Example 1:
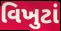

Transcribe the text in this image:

વિખુટાં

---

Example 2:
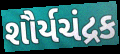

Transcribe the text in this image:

શૌર્યચંદ્રક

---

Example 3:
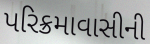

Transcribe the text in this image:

પરિક્રમાવાસીની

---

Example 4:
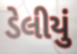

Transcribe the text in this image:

ડેલીયું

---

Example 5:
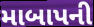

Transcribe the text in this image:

માબાપની